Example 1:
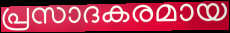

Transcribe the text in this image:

പ്രസാദകരമായ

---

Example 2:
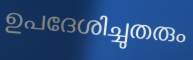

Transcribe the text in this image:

ഉപദേശിച്ചുതരും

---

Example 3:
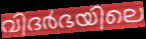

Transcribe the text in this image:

വിദർഭയിലെ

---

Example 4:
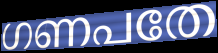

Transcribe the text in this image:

ഗണപതേ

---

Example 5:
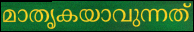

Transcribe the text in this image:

മാതൃകയാവുന്നത്